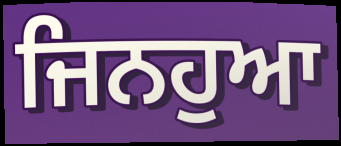
ਜਿਨਹੁਆ